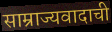
साम्राज्यवादाची